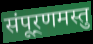
संपूर्णमस्तु